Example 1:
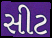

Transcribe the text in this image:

સીટ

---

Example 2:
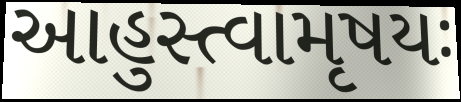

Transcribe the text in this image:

આહુસ્ત્વામૃષયઃ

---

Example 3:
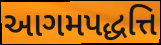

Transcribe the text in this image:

આગમપદ્ધત્તિ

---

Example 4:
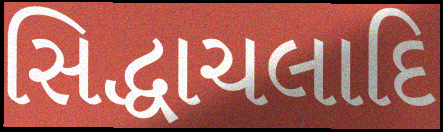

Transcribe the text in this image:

સિદ્ધાચલાદિ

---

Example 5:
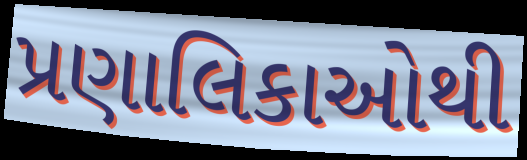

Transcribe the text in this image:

પ્રણાલિકાઓથી